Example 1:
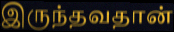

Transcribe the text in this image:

இருந்தவதான்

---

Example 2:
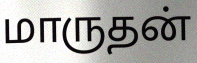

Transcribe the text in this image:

மாருதன்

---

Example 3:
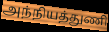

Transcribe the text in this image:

அந்நியத்துணி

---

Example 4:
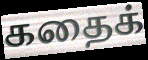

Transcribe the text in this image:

கதைக்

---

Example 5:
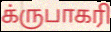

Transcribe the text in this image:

க்ருபாகரி